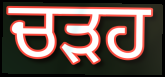
ਚੜਹ